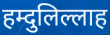
हम्दुलिल्लाह